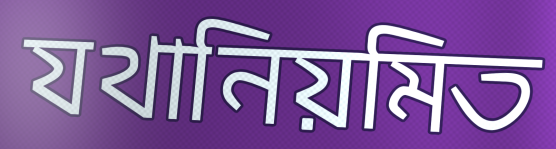
যথানিয়মিত